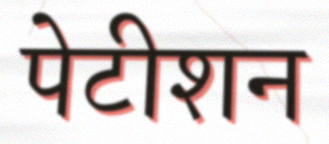
पेटीशन